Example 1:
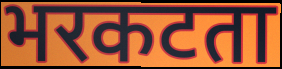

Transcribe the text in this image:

भरकटता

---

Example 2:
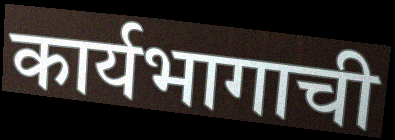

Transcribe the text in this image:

कार्यभागाची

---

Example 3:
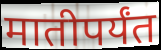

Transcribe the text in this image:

मातीपर्यंत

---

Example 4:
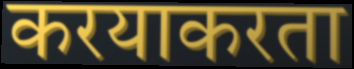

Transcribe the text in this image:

करयाकरता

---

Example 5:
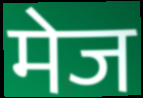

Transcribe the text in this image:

मेज